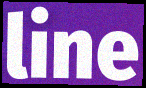
line